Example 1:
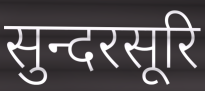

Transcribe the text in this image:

सुन्दरसूरि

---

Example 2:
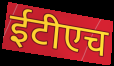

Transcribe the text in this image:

ईटीएच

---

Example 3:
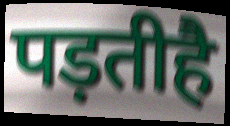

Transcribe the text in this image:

पड़तीहै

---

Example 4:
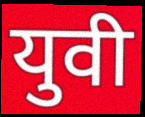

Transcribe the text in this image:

युवी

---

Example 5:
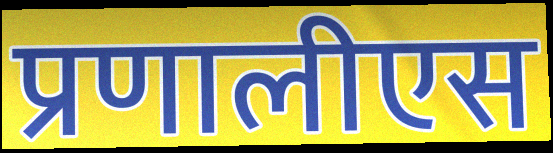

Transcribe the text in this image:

प्रणालीएस